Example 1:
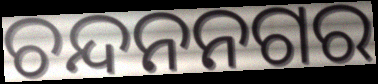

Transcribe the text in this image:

ଚନ୍ଦନନଗର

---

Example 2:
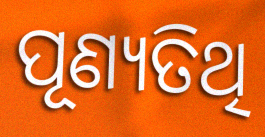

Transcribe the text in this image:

ପୂଣ୍ୟତିଥି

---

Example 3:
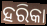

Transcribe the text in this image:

ହରିକା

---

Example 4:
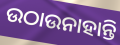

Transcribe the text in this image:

ଉଠାଉନାହାନ୍ତି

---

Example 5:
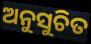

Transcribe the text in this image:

ଅନୁସୁଚିତ